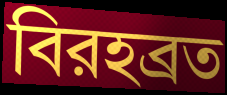
বিরহব্রত